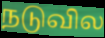
நடுவில